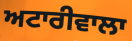
ਅਟਾਰੀਵਾਲਾ